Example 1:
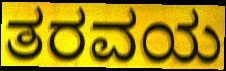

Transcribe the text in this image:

ತರವಯ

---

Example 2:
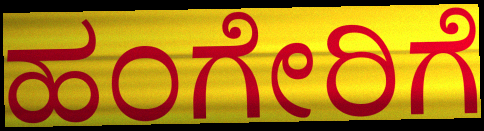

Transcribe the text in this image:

ಹಂಗೇರಿಗೆ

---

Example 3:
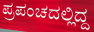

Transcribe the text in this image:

ಪ್ರಪಂಚದಲ್ಲಿದ್ದ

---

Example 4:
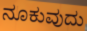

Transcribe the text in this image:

ನೂಕುವುದು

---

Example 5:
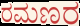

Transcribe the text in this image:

ರಮಣರ